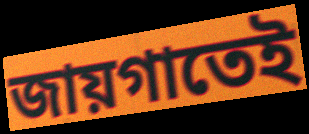
জায়গাতেই